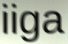
iiga